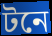
টনে